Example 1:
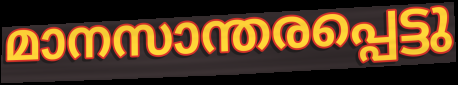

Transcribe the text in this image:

മാനസാന്തരപ്പെട്ടു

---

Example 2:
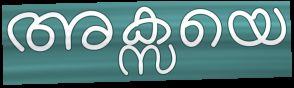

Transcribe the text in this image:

അക്സയെ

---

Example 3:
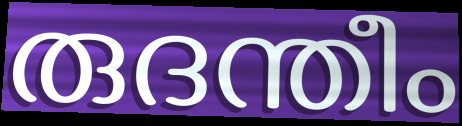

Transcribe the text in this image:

രുദന്തീം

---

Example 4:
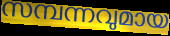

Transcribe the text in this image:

സമ്പന്നവുമായ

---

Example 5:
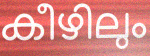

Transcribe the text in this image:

കീഴിലും